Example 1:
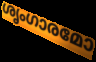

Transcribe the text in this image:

ശൃംഗാരമോ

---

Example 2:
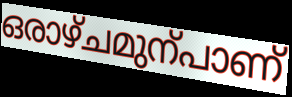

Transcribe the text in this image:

ഒരാഴ്ചമുന്പാണ്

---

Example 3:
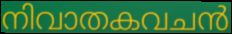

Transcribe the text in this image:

നിവാതകവചൻ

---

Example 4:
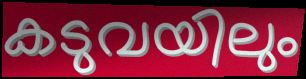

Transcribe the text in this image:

കടുവയിലും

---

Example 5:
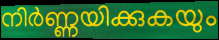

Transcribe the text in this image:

നിർണ്ണയിക്കുകയും